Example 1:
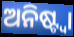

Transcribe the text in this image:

ଅନିଷ୍ଟ୍ୱା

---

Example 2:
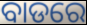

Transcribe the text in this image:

ବାଡରେ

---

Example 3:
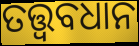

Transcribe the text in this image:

ତତ୍ତ୍ୱବଧାନ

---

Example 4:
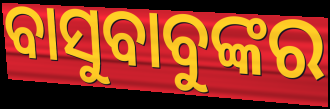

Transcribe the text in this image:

ବାସୁବାବୁଙ୍କର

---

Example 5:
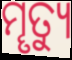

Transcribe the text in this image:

ମୄତ୍ୟୁ